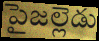
పైజల్లెడు